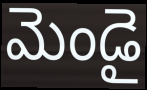
మెండై